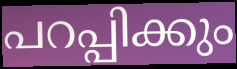
പറപ്പിക്കും